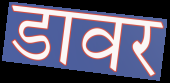
डावर